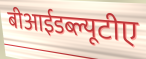
बीआईडब्ल्यूटीए